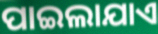
ପାଇଲାଯାଏ